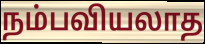
நம்பவியலாத